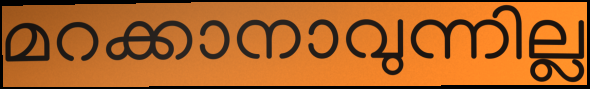
മറക്കാനാവുന്നില്ല